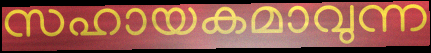
സഹായകമാവുന്ന